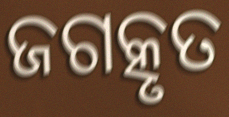
ଜଗତ୍କୃତ